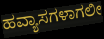
ಹವ್ಯಾಸಗಳಾಗಲೀ